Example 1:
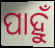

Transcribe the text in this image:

ପାହୁଁ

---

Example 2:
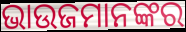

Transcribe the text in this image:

ଭାଉଜମାନଙ୍କର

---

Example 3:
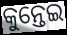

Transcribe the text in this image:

କୁନ୍ତେଇ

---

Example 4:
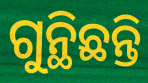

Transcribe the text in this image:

ଗୁନ୍ଥିଛନ୍ତି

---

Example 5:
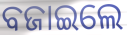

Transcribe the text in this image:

ବଜାଇଲେ